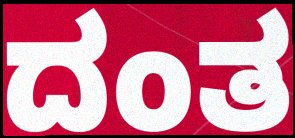
ದಂತ